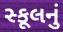
સ્કૂલનું